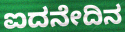
ಐದನೇದಿನ